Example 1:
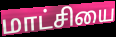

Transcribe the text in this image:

மாட்சியை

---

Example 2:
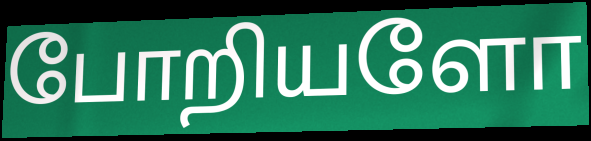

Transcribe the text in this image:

போறியளோ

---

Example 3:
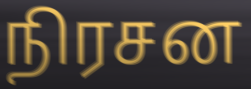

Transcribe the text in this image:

நிரசன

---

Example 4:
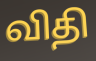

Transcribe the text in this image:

விதி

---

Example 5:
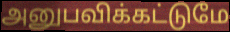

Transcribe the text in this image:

அனுபவிக்கட்டுமே